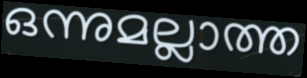
ഒന്നുമല്ലാത്ത